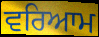
ਵਰਿਆਮ